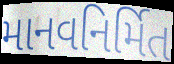
માનવનિર્મિત